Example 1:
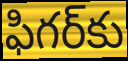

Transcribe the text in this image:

ఫిగర్‌కు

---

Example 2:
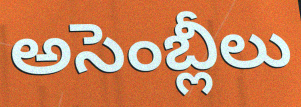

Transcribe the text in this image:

అసెంబ్లీలు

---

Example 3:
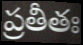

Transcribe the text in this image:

ప్రతీతః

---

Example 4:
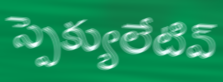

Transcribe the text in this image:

స్పెక్యులేటివ్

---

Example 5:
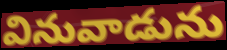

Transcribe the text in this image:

వినువాడును